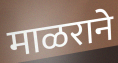
माळराने